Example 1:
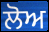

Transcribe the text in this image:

ਲੋਅ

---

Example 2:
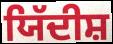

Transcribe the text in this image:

ਯਿੱਦੀਸ਼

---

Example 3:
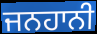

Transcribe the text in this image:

ਜਨਹਾਨੀ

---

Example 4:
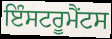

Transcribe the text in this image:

ਇੰਸਟਰੂਮੈਂਟਸ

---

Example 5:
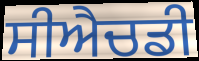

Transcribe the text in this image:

ਸੀਐਚਡੀ